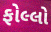
ફોલ્લો